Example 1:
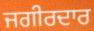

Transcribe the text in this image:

ਜਗੀਰਦਾਰ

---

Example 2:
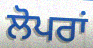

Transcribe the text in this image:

ਲੋਪਰਾਂ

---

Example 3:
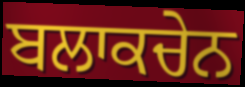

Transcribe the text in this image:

ਬਲਾਕਚੇਨ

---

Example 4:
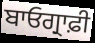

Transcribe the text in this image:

ਬਾਓਗ੍ਰਾਫ਼ੀ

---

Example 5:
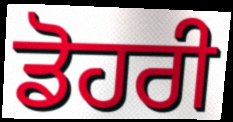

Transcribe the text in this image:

ਡੋਹਰੀ